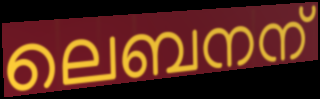
ലെബനന്